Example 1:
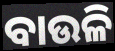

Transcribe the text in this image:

ବାଉଳି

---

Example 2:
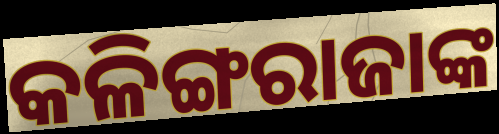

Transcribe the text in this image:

କଳିଙ୍ଗରାଜାଙ୍କ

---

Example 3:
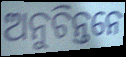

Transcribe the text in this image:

ଅନୁଚିନ୍ତନେ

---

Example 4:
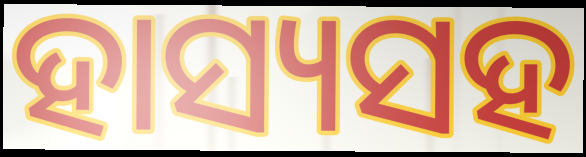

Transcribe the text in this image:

ହାସ୍ୟସହ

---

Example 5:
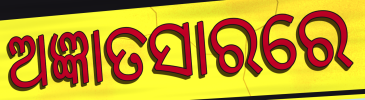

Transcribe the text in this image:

ଅଜ୍ଞାତସାରରେ